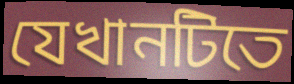
যেখানটিতে